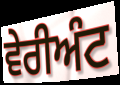
ਵੇਰੀਅੰਟ